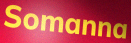
Somanna